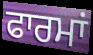
ਫਾਰਮਾਂ